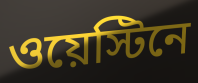
ওয়েস্টিনে